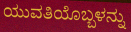
ಯುವತಿಯೊಬ್ಬಳನ್ನು